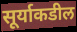
सूर्याकडील